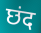
छंद